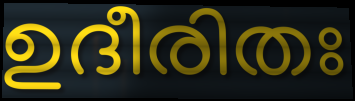
ഉദീരിതഃ